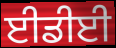
ਈਡੀਈ